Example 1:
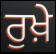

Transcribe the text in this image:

ਰੁਖ਼ੇ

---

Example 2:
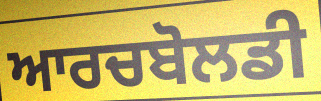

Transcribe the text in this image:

ਆਰਚਬੋਲਡੀ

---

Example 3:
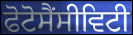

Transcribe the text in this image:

ਫੋਟੋਸੈਂਸੀਵਿਟੀ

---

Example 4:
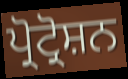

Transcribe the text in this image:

ਪ੍ਰੋਟ੍ਰੋਸ਼ਨ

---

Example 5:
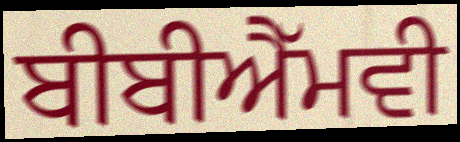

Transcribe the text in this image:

ਬੀਬੀਐੱਮਵੀ